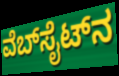
ವೆಬ್‍ಸೈಟ್‍ನ